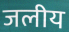
जलीय